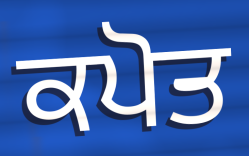
ਕਪੋਤ